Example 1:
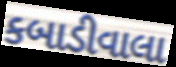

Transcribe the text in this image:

કબાડીવાલા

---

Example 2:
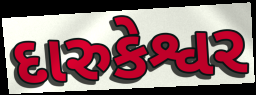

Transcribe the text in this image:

દારુકેશ્વર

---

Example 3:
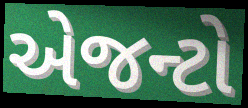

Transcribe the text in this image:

એજન્ટો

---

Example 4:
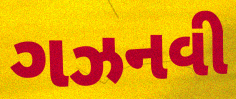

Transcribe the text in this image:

ગઝનવી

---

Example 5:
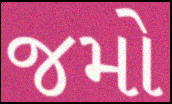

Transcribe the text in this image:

જમો